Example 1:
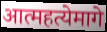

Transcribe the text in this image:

आत्महत्येमागे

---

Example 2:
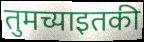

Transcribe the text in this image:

तुमच्याइतकी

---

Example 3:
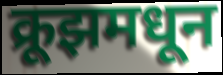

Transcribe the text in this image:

क्रूझमधून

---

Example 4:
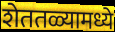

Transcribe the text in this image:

शेततळ्यामध्ये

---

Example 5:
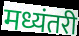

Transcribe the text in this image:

मध्यंतरी